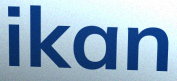
ikan